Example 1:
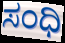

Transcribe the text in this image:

ಸಂಧಿ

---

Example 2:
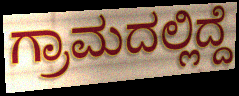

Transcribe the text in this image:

ಗ್ರಾಮದಲ್ಲಿದ್ದೆ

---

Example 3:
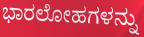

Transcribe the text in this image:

ಭಾರಲೋಹಗಳನ್ನು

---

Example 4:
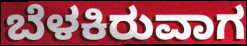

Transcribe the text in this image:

ಬೆಳಕಿರುವಾಗ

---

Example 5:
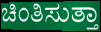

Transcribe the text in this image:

ಚಿಂತಿಸುತ್ತಾ